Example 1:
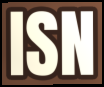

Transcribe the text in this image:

ISN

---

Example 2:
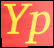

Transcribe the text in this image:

Yp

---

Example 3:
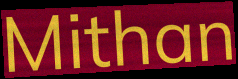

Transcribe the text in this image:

Mithan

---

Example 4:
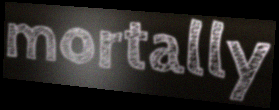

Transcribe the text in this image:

mortally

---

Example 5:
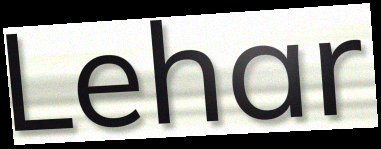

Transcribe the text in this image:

Lehar